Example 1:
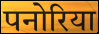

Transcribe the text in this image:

पनोरिया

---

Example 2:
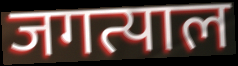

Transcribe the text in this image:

जगत्याल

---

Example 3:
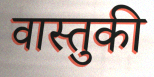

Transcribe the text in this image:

वास्तुकी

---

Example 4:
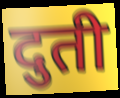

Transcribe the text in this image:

दुती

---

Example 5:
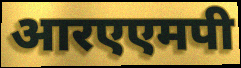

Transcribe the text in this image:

आरएएमपी